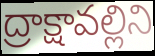
ద్రాక్షావల్లిని